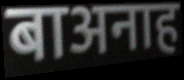
बाअनाह